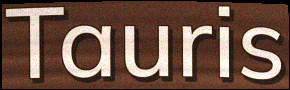
Tauris